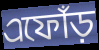
এফোঁড়